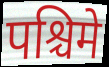
पश्चिमे